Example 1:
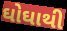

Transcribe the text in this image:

ઘોઘાથી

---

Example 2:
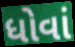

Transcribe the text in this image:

ધોવાં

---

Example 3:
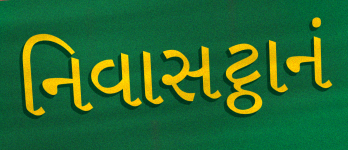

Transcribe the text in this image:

નિવાસટ્ઠાનં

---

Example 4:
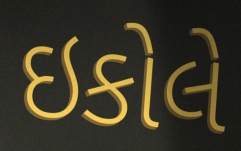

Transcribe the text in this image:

ઇકોલે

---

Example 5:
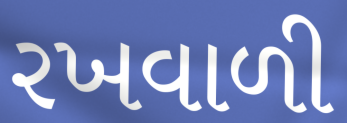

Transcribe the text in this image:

રખવાળી